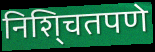
निश्‍चितपणे